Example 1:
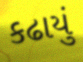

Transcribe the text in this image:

કઢાયું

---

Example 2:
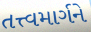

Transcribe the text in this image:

તત્ત્વમાર્ગને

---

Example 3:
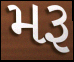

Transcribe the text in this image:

મરૂ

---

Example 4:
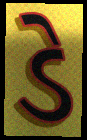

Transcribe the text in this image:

ડે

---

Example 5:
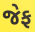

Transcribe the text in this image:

જેફ